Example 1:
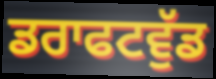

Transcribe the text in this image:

ਡਰਾਫਟਵੁੱਡ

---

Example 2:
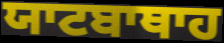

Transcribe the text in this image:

ਯਾਟਬਾਥਾਹ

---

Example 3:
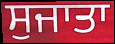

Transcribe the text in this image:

ਸੁਜਾਤਾ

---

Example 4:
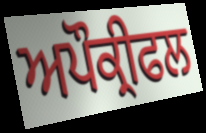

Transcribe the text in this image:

ਅਪੌਕ੍ਰੀਫਲ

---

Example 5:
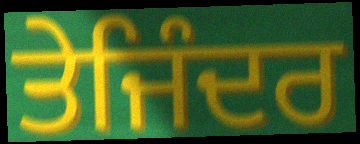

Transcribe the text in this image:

ਤੇਜਿੰਦਰ